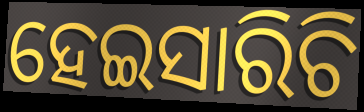
ହେଇସାରିଚି